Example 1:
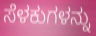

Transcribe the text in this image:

ಸೆಳಕುಗಳನ್ನು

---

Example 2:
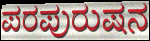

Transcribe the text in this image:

ಪರಪುರುಷನ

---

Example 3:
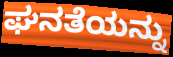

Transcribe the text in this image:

ಘನತೆಯನ್ನು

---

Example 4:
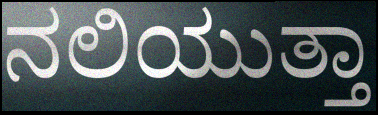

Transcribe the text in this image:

ನಲಿಯುತ್ತಾ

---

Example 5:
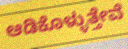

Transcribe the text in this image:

ಆಡಿಕೊಳ್ಳುತ್ತೇವೆ